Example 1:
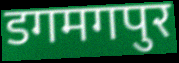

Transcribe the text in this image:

डगमगपुर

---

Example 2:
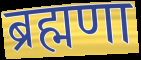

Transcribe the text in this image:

ब्रह्मणा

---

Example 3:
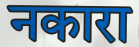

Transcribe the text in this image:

नकारा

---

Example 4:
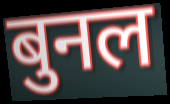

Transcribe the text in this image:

बुनल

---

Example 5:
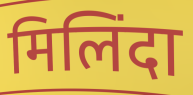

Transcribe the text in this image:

मिलिंदा